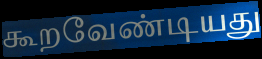
கூறவேண்டியது